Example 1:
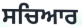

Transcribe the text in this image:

ਸਚਿਆਰ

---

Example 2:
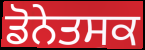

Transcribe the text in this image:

ਡੋਨੇਤਸਕ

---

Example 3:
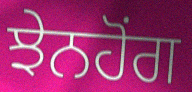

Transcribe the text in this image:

ਝੇਨਹੋਂਗ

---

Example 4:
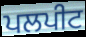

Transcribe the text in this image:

ਪਲਪੀਟ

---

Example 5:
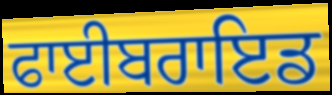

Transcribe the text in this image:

ਫਾਈਬਰਾਇਡ